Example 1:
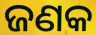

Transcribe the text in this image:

ଜଣକ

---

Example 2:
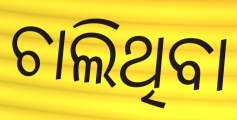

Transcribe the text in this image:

ଚାଲିଥିବା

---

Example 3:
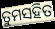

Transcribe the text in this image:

ତୁମସହିତ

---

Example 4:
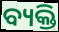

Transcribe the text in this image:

ବ୍ୟକ୍ତି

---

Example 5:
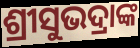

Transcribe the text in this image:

ଶ୍ରୀସୁଭଦ୍ରାଙ୍କ